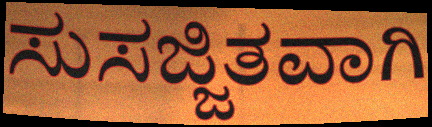
ಸುಸಜ್ಜಿತವಾಗಿ